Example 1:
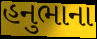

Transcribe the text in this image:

હનુભાના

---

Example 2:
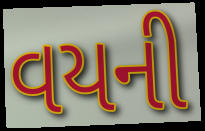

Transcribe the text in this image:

વયની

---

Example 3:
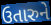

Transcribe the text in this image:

ઉતારુને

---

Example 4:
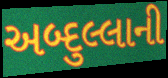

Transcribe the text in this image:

અબ્દુલ્લાની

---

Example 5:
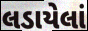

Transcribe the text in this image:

લડાયેલાં